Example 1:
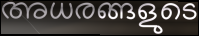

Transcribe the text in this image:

അധരങ്ങളുടെ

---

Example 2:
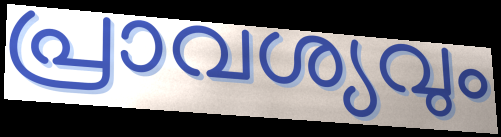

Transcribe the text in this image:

പ്രാവശ്യവും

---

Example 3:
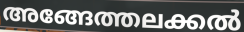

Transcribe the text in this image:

അങ്ങേത്തലക്കൽ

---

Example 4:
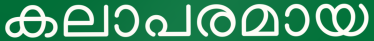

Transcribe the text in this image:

കലാപരമായ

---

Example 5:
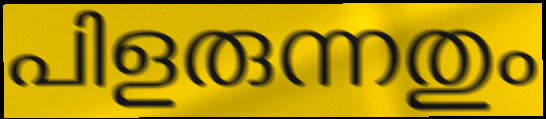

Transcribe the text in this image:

പിളരുന്നതും